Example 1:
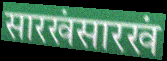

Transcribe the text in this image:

सारखंसारखं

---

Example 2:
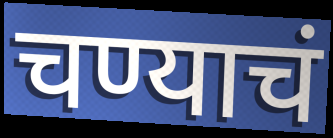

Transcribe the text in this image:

चण्याचं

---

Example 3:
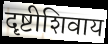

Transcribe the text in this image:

दृष्टीशिवाय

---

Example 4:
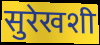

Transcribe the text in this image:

सुरेखशी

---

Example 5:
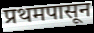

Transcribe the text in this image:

प्रथमपासून